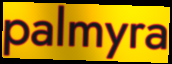
palmyra